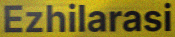
Ezhilarasi